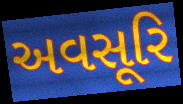
અવસૂરિ